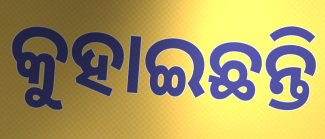
କୁହାଇଛନ୍ତି